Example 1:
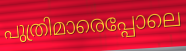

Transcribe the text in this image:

പുത്രിമാരെപ്പോലെ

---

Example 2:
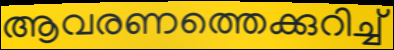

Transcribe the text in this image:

ആവരണത്തെക്കുറിച്ച്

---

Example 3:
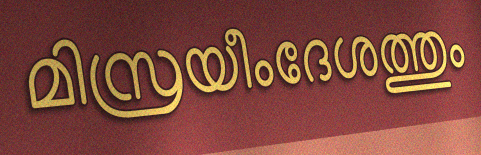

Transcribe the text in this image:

മിസ്രയീംദേശത്തും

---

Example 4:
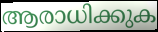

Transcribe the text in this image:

ആരാധിക്കുക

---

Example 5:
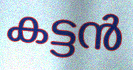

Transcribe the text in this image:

കട്ടൻ